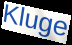
Kluge